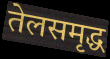
तेलसमृद्ध